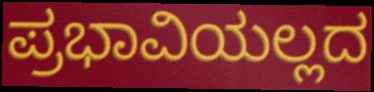
ಪ್ರಭಾವಿಯಲ್ಲದ